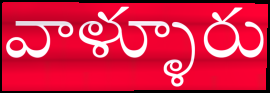
వాళ్ళూరు